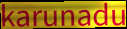
karunadu